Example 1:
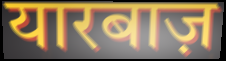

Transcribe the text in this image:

यारबाज़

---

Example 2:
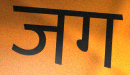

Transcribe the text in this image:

जग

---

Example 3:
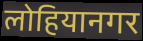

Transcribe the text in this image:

लोहियानगर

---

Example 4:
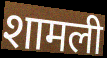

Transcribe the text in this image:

शामली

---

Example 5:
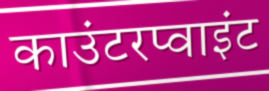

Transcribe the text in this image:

काउंटरप्वाइंट